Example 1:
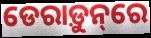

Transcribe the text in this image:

ଡେରାଡ଼ୁନ୍‌ରେ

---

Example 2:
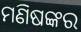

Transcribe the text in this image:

ମଣିଷଙ୍କର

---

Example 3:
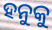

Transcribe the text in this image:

ହନୁକୁ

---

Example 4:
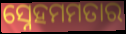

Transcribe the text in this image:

ସ୍ନେହମମତାର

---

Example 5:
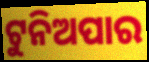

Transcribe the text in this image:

ଟୁନିଅପାର